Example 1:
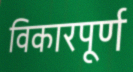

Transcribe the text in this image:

विकारपूर्ण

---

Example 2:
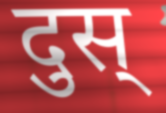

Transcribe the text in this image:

दुस्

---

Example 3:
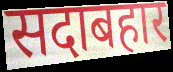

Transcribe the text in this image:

सदाबहार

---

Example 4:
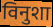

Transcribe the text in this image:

विनुशा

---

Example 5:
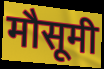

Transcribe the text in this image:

मौसूमी